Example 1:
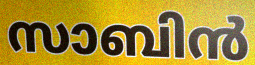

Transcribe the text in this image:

സാബിൻ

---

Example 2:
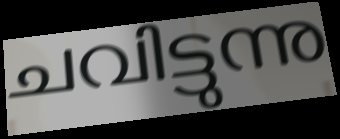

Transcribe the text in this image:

ചവിട്ടുന്നു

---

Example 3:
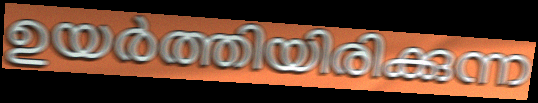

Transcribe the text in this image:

ഉയർത്തിയിരിക്കുന്ന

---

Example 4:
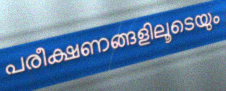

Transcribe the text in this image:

പരീക്ഷണങ്ങളിലൂടെയും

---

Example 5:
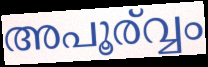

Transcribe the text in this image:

അപൂര്വ്വം